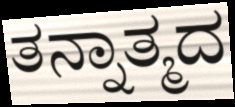
ತನ್ನಾತ್ಮದ